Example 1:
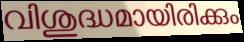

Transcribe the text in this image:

വിശുദ്ധമായിരിക്കും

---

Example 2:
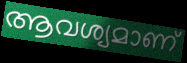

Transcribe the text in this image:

ആവശ്യമാണ്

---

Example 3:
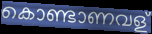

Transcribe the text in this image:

കൊണ്ടാണവള്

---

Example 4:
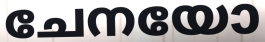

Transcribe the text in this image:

ചേനയോ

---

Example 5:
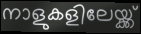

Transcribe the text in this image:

നാളുകളിലേയ്ക്ക്